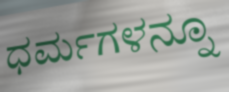
ಧರ್ಮಗಳನ್ನೂ